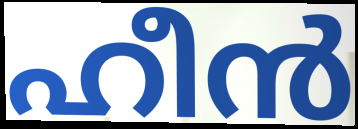
ഹീൻ